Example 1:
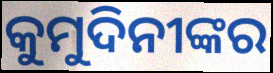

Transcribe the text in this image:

କୁମୁଦିନୀଙ୍କର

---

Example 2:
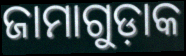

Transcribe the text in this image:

ଜାମାଗୁଡ଼ାକ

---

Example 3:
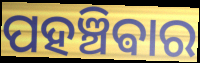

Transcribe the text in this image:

ପହଞ୍ଚିଵାର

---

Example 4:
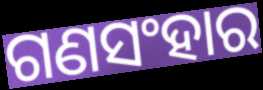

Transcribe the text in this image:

ଗଣସଂହାର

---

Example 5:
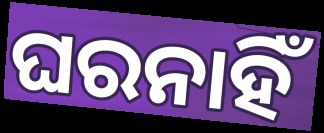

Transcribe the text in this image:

ଘରନାହିଁ